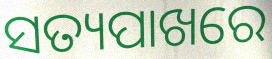
ସତ୍ୟପାଖରେ